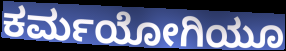
ಕರ್ಮಯೋಗಿಯೂ